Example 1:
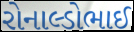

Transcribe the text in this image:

રોનાલ્ડોભાઈ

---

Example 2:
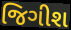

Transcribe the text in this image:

જિગીશ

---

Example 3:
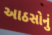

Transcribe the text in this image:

આઠસોનું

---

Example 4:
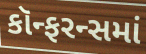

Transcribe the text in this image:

કૉન્ફરન્સમાં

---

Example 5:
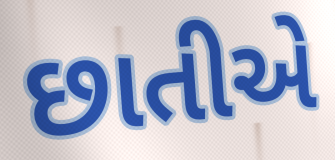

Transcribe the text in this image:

છાતીએ